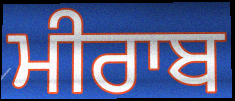
ਮੀਰਾਬ